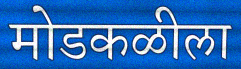
मोडकळीला